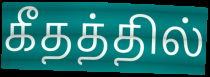
கீதத்தில்